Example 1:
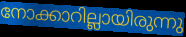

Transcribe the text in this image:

നോക്കാറില്ലായിരുന്നു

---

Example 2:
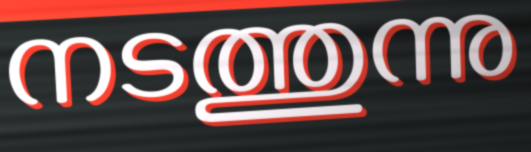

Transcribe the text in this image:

നടത്തുന്നു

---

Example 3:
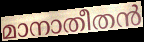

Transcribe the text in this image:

മാനാതീതൻ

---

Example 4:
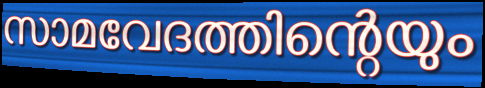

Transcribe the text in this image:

സാമവേദത്തിന്റെയും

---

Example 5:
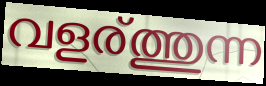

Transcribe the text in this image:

വളര്ത്തുന്ന